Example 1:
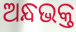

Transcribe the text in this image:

ଅନ୍ଧଭକ୍ତ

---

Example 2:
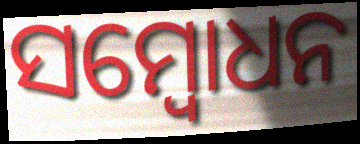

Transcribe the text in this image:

ସମ୍ବୋଧନ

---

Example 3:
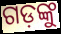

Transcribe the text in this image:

ଗଡ଼ଙ୍କୁ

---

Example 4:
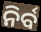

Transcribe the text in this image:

ନିର୍ବ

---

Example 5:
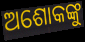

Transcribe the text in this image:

ଅଶୋକଙ୍କୁ